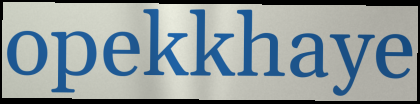
opekkhaye